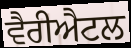
ਵੈਰੀਐਟਲ